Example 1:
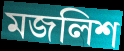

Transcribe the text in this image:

মজলিশ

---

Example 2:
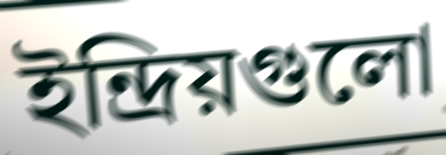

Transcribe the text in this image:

ইন্দ্রিয়গুলো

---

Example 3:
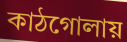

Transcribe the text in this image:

কাঠগোলায়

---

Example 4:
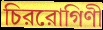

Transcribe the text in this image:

চিররোগিণী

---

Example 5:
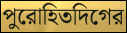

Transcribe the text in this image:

পুরোহিতদিগের